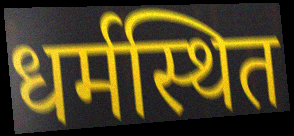
धर्मस्थित